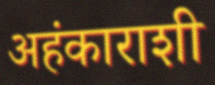
अहंकाराशी